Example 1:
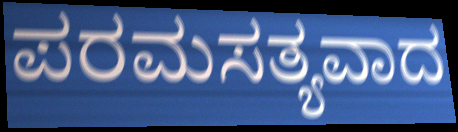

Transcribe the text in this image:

ಪರಮಸತ್ಯವಾದ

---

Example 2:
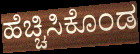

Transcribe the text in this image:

ಹೆಚ್ಚಿಸಿಕೊಂಡ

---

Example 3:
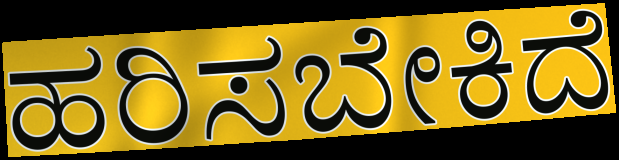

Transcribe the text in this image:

ಹರಿಸಬೇಕಿದೆ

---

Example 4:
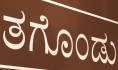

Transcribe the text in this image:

ತಗೊಂಡು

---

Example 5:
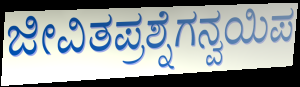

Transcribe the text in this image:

ಜೀವಿತಪ್ರಶ್ನೆಗನ್ವಯಿಪ